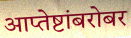
आप्तेष्टांबरोबर